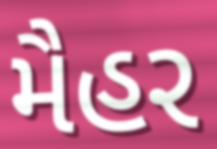
મૈહર